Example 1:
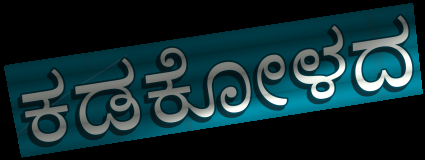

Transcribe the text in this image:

ಕಡಕೋಳದ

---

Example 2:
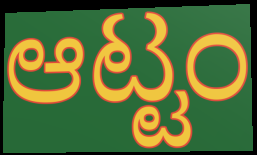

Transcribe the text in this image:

ಆಟ್ಟಂ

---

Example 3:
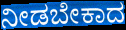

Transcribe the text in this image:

ನೀಡಬೇಕಾದ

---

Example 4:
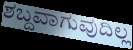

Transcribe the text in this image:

ಶಬ್ದವಾಗುವುದಿಲ್ಲ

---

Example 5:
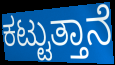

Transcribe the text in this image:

ಕಟ್ಟುತ್ತಾನೆ